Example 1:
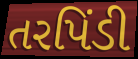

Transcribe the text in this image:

તરપિંડી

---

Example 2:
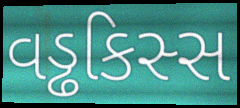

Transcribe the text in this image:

વડ્ઢકિસ્સ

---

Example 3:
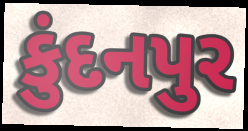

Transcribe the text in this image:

કુંદનપુર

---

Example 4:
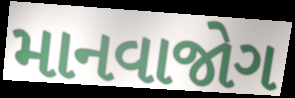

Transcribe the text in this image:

માનવાજોગ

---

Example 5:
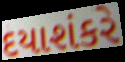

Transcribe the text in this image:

દયાશંકરે